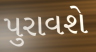
પુરાવશે